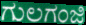
ಗುಲಗಂಜಿ